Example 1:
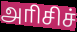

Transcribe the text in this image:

அரிசிச்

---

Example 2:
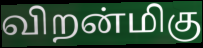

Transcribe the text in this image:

விறன்மிகு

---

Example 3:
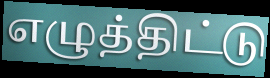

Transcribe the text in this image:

எழுத்திட்டு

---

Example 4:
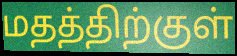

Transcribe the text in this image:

மதத்திற்குள்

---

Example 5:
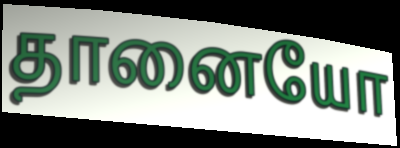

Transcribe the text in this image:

தானையோ